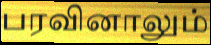
பரவினாலும்